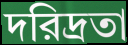
দরিদ্রতা